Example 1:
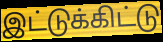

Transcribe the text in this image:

இட்டுக்கிட்டு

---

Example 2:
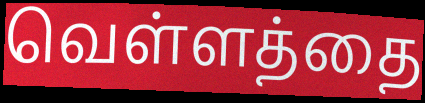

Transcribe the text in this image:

வெள்ளத்தை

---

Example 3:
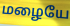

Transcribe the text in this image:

மழையே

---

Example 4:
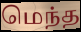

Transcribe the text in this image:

மெந்த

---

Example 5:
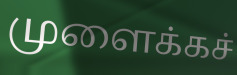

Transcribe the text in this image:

முளைக்கச்